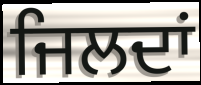
ਜਿਲਦਾਂ